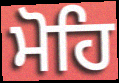
ਮੋਹਿ